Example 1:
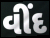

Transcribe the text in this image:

વીંદ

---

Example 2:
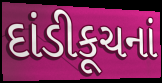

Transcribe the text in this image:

દાંડીકૂચનાં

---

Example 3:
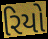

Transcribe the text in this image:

રિયો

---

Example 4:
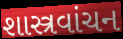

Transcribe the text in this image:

શાસ્ત્રવાંચન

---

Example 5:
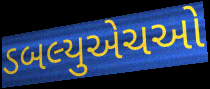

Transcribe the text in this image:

ડબલ્યુએચઓ